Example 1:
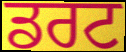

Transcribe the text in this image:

ਡਰਟ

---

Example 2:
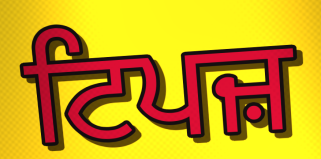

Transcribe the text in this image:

ਟਿਪਜ਼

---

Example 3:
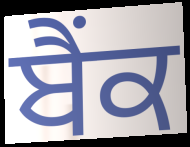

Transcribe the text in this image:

ਬੈਂਕ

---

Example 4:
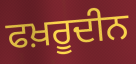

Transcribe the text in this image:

ਫਖ਼ਰੂਦੀਨ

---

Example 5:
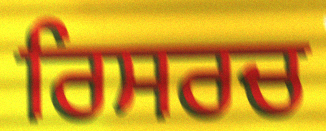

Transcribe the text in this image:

ਰਿਸਰਚ